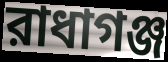
রাধাগঞ্জ